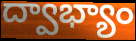
ద్వాభ్యాం